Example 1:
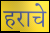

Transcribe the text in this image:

हराचे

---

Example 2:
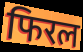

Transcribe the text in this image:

फिरल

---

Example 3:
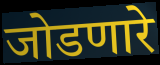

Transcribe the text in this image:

जोडणारे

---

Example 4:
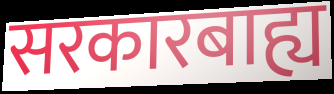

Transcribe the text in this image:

सरकारबाह्य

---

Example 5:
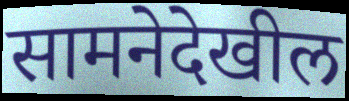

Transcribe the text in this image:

सामनेदेखील